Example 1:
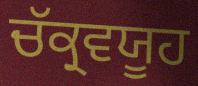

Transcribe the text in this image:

ਚੱਕ੍ਰਵਯੂਹ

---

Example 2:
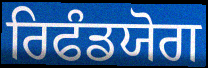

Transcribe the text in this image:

ਰਿਫੰਡਯੋਗ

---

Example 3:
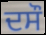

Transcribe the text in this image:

ਦਸੌ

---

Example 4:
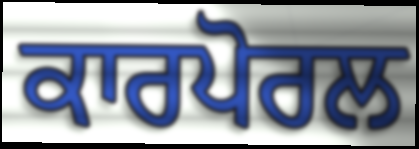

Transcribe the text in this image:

ਕਾਰਪੋਰਲ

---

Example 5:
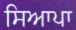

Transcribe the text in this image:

ਸਿਆਪਾ